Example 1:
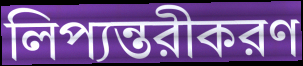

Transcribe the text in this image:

লিপ্যন্তরীকরণ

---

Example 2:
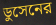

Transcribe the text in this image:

ডুসেনের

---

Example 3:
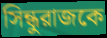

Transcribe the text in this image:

সিন্ধুরাজকে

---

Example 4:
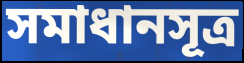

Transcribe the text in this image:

সমাধানসূত্র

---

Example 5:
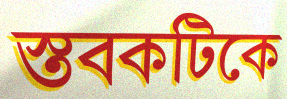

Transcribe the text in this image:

স্তবকটিকে